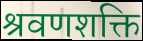
श्रवणशक्ति